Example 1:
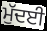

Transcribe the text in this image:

ਮੁੱਦਈ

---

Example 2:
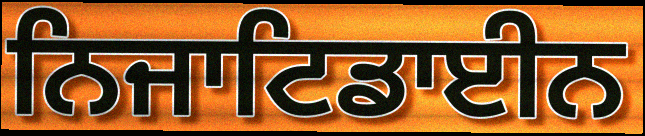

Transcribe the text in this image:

ਨਿਜਾਟਿਡਾਈਨ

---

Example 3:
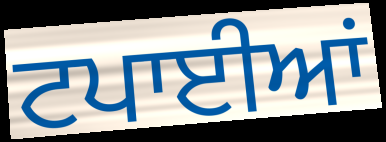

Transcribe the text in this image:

ਟਪਾਈਆਂ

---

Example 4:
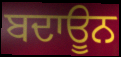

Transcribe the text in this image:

ਬਦਾਊਨ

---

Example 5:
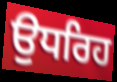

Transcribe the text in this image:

ਉਧਰਿਹ